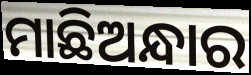
ମାଛିଅନ୍ଧାର